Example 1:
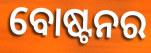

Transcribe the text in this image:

ବୋଷ୍ଟନର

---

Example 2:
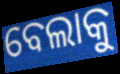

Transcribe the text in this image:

ବେଲାକୁ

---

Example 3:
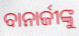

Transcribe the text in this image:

ବାନାର୍ଜୀଙ୍କୁ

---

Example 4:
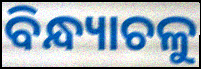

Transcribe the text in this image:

ବିନ୍ଧ୍ୟାଚଳୁ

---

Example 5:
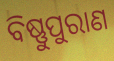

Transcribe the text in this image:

ବିଷ୍ଣୁପୁରାଣ